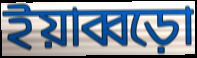
ইয়াব্বড়ো